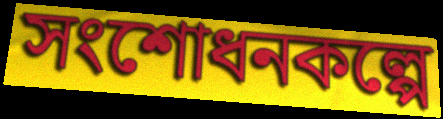
সংশোধনকল্পে